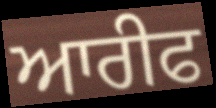
ਆਰੀਫ